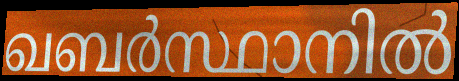
ഖബർസ്ഥാനിൽ